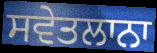
ਸਵੇਤਲਾਨਾ